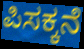
ಪಿಸಕ್ಕನೆ